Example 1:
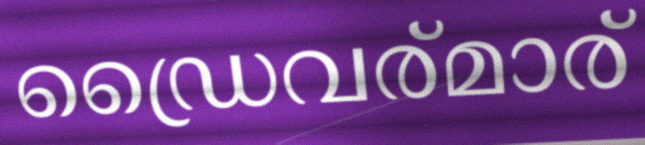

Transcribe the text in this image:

ഡ്രൈവര്മാര്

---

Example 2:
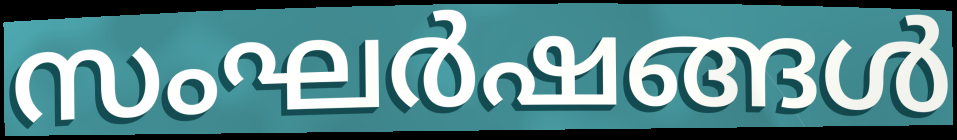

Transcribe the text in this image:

സംഘർഷങ്ങൾ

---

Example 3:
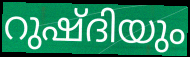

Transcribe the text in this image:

റുഷ്ദിയും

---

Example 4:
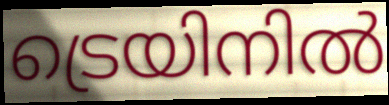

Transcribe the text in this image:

ട്രെയിനിൽ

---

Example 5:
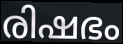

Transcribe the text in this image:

രിഷഭം